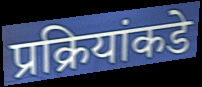
प्रक्रियांकडे